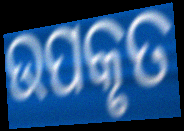
ଉପକୃତ